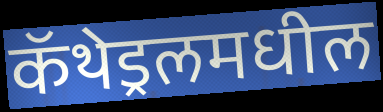
कॅथेड्रलमधील